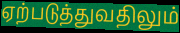
ஏற்படுத்துவதிலும்